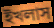
ইখলাস